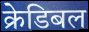
क्रेडिबल